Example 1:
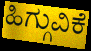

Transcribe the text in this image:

ಹಿಗ್ಗುವಿಕೆ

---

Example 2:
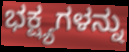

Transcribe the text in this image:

ಭಕ್ಷ್ಯಗಳನ್ನು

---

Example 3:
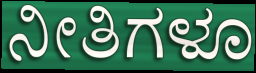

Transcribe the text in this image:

ನೀತಿಗಳೂ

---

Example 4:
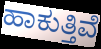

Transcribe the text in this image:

ಹಾಕುತ್ತಿವೆ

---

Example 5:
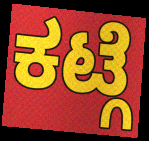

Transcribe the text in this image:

ಕಟ್ಗೆ